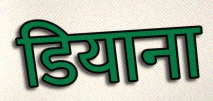
डियाना